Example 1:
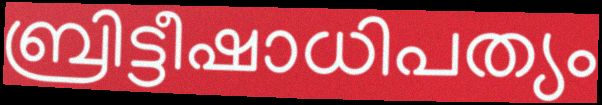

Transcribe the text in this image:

ബ്രിട്ടീഷാധിപത്യം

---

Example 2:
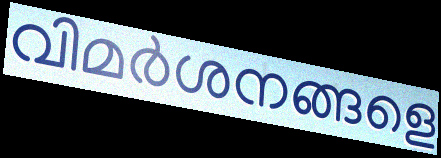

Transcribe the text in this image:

വിമർശനങ്ങളെ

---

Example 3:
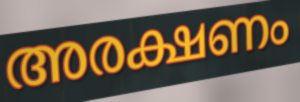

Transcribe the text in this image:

അരക്ഷണം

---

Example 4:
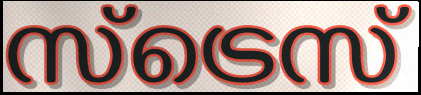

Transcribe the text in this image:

സ്ട്രെസ്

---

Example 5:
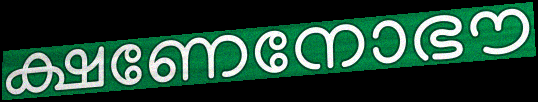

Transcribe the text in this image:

ക്ഷണേനോഭൗ